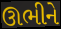
ઊભીને